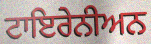
ਟਾਇਰੇਨੀਅਨ